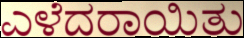
ಎಳೆದರಾಯಿತು